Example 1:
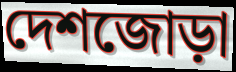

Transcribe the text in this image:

দেশজোড়া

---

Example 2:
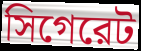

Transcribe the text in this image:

সিগেরেট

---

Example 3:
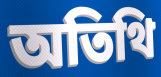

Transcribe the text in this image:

অতিথি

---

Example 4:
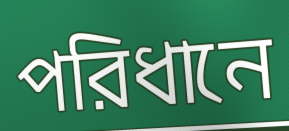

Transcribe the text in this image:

পরিধানে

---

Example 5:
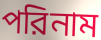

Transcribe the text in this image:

পরিনাম